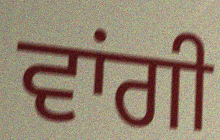
ਵਾਂਗੀ